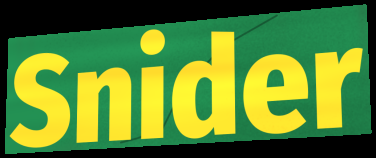
Snider